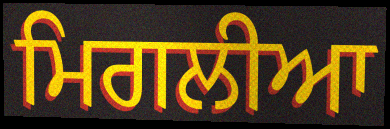
ਮਿਗਲੀਆ